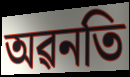
অৱনতি